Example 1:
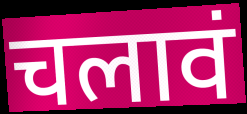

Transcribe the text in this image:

चलावं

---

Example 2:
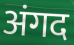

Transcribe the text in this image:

अंगद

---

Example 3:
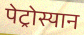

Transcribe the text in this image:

पेट्रोस्यान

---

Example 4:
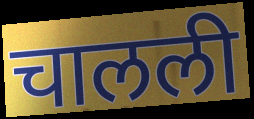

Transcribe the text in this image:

चालली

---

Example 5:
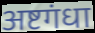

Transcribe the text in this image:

अष्टगंधा